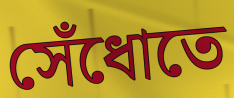
সেঁধোতে